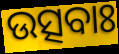
ଉତ୍ସବାଃ